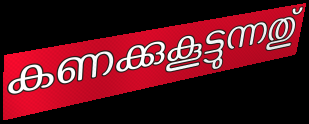
കണക്കുകൂട്ടുന്നതു്